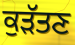
ਕੁੜੱਤਣ